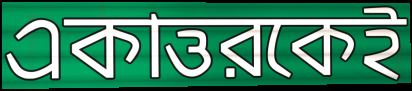
একাত্তরকেই